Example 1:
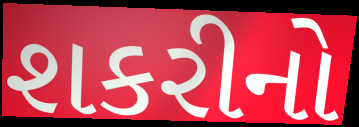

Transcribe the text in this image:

શકરીનો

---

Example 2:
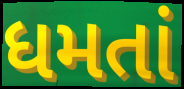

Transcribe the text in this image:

ધમતાં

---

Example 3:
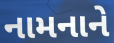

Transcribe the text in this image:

નામનાને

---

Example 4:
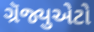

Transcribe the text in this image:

ગ્રૅજ્યુએટો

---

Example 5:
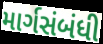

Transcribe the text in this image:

માર્ગસંબંધી